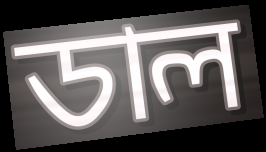
ডাল